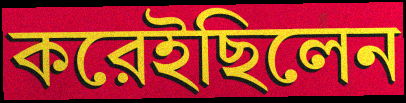
করেইছিলেন